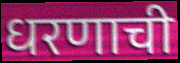
धरणाची